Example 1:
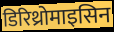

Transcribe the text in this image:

डिरिथ्रोमाइसिन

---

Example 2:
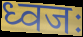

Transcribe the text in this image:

ध्वजः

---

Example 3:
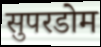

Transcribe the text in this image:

सुपरडोम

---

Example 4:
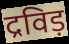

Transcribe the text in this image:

द्रविड़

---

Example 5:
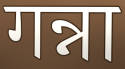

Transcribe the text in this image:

गन्ना